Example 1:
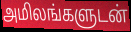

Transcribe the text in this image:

அமிலங்களுடன்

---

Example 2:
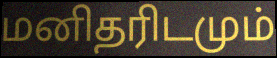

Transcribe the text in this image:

மனிதரிடமும்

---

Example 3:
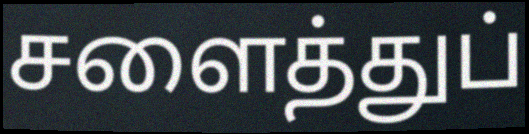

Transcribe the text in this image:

சளைத்துப்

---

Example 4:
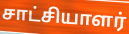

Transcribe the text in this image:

சாட்சியாளர்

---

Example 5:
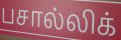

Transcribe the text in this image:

பசால்லிக்